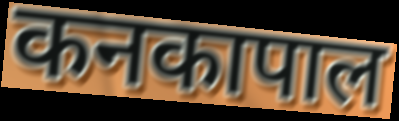
कनकापाल